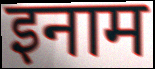
इनाम